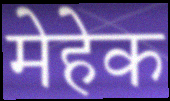
मेहेक